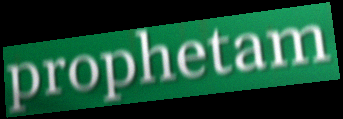
prophetam